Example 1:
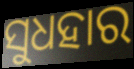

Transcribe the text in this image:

ସୁଧହାର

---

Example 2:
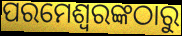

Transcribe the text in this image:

ପରମେଶ୍ଵରଙ୍କଠାରୁ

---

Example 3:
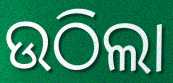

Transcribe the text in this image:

ଉଠିଲା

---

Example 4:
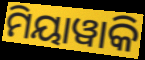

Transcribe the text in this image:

ମିୟାୱାକି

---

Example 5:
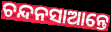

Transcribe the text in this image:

ଚନ୍ଦନସାଆନ୍ତେ